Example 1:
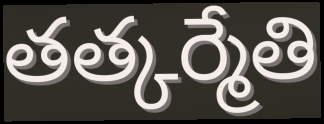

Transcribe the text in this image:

తత్కర్మేతి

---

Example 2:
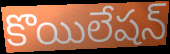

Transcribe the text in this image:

కొయిలేషన్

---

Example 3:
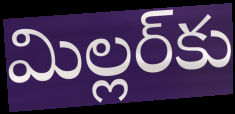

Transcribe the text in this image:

మిల్లర్‌కు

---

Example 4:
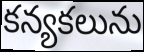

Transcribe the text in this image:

కన్యకలును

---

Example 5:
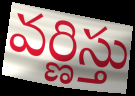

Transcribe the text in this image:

వర్ణిస్తు